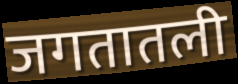
जगतातली